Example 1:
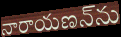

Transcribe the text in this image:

నారాయణన్‌ను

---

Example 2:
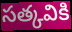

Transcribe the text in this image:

సత్కవికి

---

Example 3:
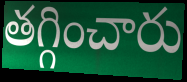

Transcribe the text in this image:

తగ్గించారు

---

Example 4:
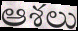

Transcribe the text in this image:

ఆశలు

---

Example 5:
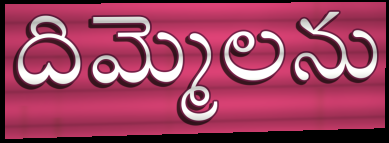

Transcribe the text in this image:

దిమ్మెలను